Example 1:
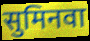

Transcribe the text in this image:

सुमिनवा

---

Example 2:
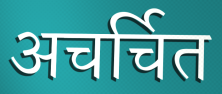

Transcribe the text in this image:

अचर्चित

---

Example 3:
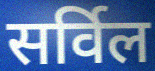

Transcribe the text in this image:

सर्विल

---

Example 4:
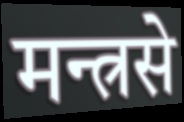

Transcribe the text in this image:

मन्त्रसे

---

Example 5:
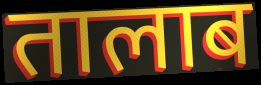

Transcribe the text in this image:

तालाब